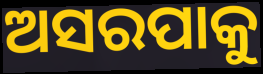
ଅସରପାକୁ